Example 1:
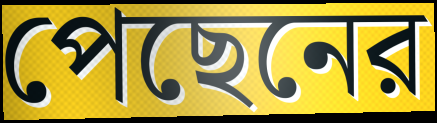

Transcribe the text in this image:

পেছেনের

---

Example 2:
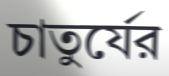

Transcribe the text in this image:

চাতুর্যের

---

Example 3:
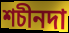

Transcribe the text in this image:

শচীনদা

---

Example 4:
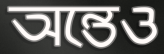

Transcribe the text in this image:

অন্তেও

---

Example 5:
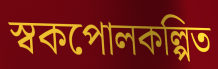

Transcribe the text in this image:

স্বকপোলকল্পিত